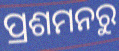
ପ୍ରଶମନରୁ